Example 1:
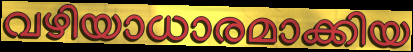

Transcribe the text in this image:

വഴിയാധാരമാക്കിയ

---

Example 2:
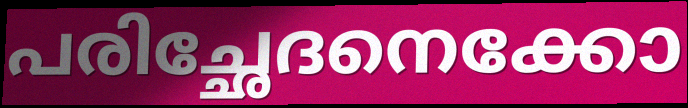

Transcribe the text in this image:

പരിച്ഛേദനെക്കോ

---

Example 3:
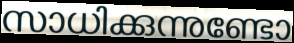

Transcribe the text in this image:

സാധിക്കുന്നുണ്ടോ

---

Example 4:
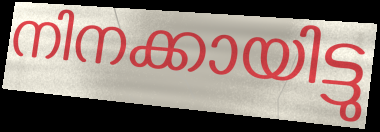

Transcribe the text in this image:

നിനക്കായിട്ടു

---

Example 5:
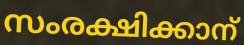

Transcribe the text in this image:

സംരക്ഷിക്കാന്